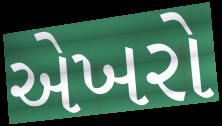
એખરો